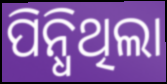
ପିନ୍ଧିଥିଲା